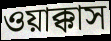
ওয়াক্কাস